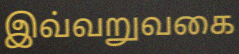
இவ்வறுவகை